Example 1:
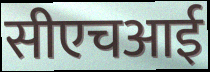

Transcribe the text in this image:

सीएचआई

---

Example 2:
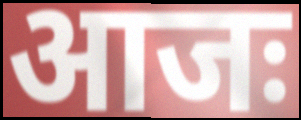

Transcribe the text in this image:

आजः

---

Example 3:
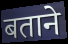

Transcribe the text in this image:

बताने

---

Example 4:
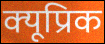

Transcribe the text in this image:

क्यूप्रिक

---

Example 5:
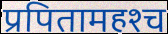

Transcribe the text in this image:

प्रपितामहश्च